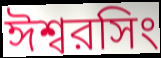
ঈশ্বরসিং